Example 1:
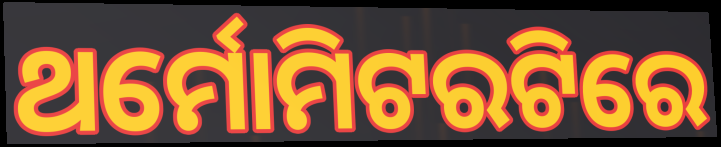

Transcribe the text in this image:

ଥର୍ମୋମିଟରଟିରେ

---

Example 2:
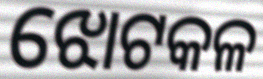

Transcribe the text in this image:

ଝୋଟକଳ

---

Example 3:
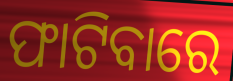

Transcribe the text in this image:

ଫାଟିବାରେ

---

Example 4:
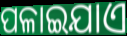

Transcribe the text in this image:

ପଳାଇଯାଏ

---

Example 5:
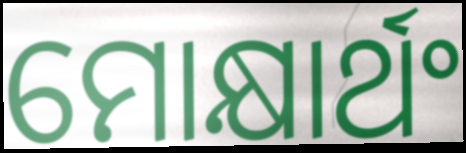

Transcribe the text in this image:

ମୋକ୍ଷାର୍ଥଂ